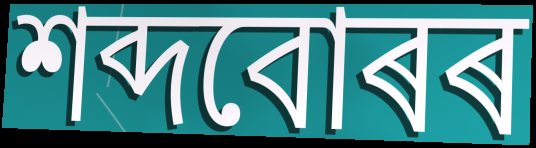
শব্দবোৰৰ